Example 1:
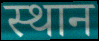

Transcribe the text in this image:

स्थान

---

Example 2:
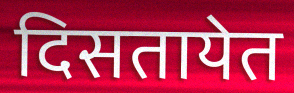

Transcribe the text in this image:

दिसतायेत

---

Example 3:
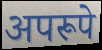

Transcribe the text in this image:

अपरूपे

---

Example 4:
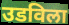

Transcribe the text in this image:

उडविला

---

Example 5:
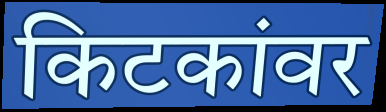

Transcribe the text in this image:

किटकांवर